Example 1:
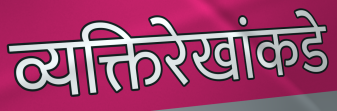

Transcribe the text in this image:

व्यक्तिरेखांकडे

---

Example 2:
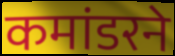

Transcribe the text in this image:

कमांडरने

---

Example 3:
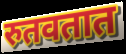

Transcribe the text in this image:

रुतवतात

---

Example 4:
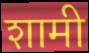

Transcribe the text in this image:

शामी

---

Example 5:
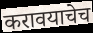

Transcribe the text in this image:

करावयाचेच